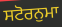
ਸਟੋਰਨੁਮਾ